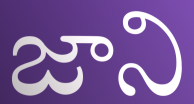
జాని